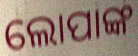
ଲୋପାଙ୍କ